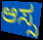
ಆಸ್ಸ